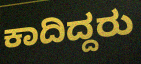
ಕಾದಿದ್ದರು